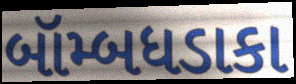
બૉમ્બધડાકા